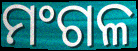
ମଂଗଳ